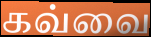
கவ்வை